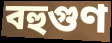
বহুগুণ